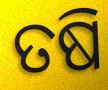
ତଷି